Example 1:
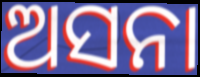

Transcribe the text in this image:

ଅସନା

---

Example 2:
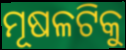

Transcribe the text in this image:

ମୂଷଳଟିକୁ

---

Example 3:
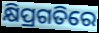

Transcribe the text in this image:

କ୍ଷିପ୍ରଗତିରେ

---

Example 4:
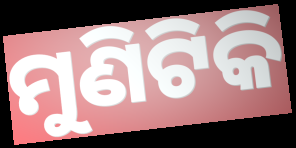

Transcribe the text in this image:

ମୁଣିଟିକି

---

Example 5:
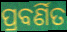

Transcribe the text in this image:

ପ୍ରବର୍ଣିତ